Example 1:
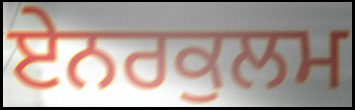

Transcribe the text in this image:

ਏਨਰਕੁਲਮ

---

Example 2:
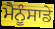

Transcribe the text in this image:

ਮੈਨੂੰਸਾਡੇ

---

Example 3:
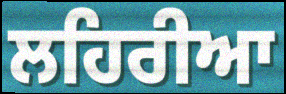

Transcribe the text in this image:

ਲਹਿਰੀਆ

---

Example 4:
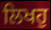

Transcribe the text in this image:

ਲਿਖਹੁ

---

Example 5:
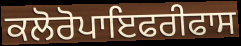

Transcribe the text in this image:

ਕਲੋਰੋਪਾਇਫਰੀਫਾਸ